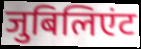
जुबिलिएंट